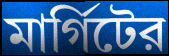
মার্গিটের